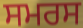
ਸਮਰਸ